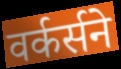
वर्कर्सने